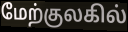
மேற்குலகில்